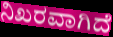
ನಿಖರವಾಗಿದೆ